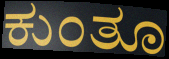
ಕುಂತೂ